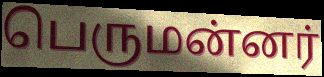
பெருமன்னர்